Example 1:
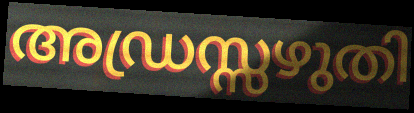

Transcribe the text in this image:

അഡ്രസ്സഴുതി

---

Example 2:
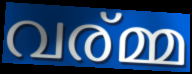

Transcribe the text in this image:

വര്മ്മ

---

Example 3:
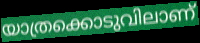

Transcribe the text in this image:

യാത്രക്കൊടുവിലാണ്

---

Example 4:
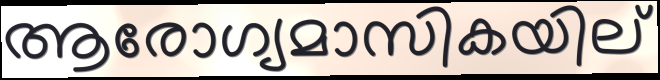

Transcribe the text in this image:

ആരോഗ്യമാസികയില്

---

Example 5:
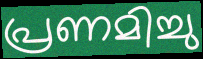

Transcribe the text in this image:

പ്രണമിച്ചു